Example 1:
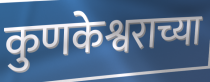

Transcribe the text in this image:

कुणकेश्वराच्या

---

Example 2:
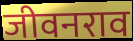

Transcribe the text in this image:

जीवनराव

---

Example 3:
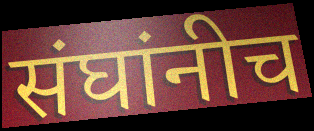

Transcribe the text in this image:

संघांनीच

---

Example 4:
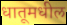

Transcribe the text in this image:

धातूमधील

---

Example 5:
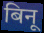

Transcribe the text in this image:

बिनू